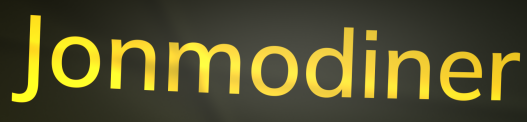
Jonmodiner